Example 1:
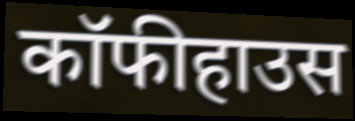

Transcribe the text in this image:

कॉफीहाउस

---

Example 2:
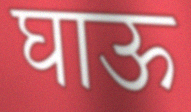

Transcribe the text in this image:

घाऊ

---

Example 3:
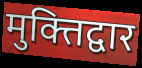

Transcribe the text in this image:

मुक्तिद्वार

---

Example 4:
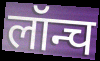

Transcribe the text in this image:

लॉन्च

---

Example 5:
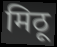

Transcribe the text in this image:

मिठू